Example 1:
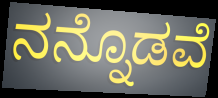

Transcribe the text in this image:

ನನ್ನೊಡವೆ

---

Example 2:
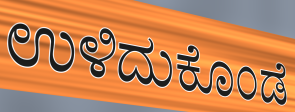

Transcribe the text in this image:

ಉಳಿದುಕೊಂಡೆ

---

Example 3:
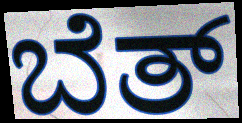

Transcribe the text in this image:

ಬೆತ್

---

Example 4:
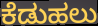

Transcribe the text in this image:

ಕೆಡುಹಲು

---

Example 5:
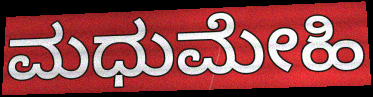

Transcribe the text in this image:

ಮಧುಮೇಹಿ